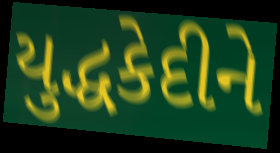
યુદ્ધકેદીને